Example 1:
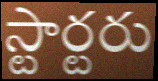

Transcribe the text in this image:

స్టార్టరు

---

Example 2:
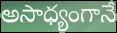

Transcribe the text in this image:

అసాధ్యంగానే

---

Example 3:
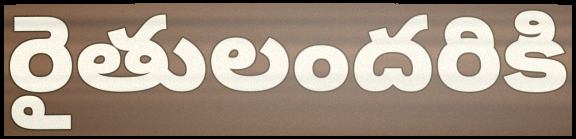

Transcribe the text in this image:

రైతులందరికి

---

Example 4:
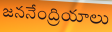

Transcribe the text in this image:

జననేంద్రియాలు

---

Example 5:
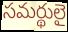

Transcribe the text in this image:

సమర్థులై